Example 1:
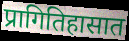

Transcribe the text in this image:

प्रागितिहासात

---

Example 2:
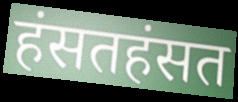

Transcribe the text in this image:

हंसतहंसत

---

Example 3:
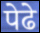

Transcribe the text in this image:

पेढे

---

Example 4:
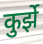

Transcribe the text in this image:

कुर्झे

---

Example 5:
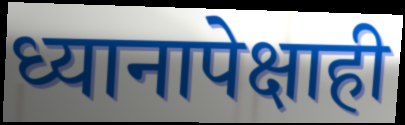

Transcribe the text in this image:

ध्यानापेक्षाही